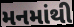
મનમાંથી